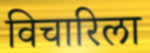
विचारिला